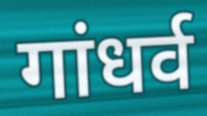
गांधर्व